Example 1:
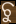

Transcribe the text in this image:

ଚୁ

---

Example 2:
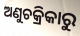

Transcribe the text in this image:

ଅଣୁଚକ୍ରିକାରୁ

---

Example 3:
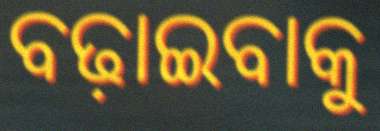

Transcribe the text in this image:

ବଢ଼ାଇବାକୁ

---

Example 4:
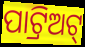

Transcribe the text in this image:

ପାଟ୍ରିଅଟ୍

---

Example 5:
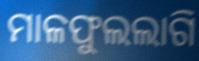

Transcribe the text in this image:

ମାଳଫୁଲଲାଗି